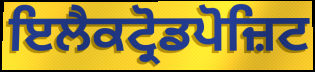
ਇਲੈਕਟ੍ਰੋਡਪੋਜ਼ਿਟ